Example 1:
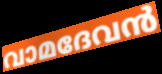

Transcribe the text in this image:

വാമദേവൻ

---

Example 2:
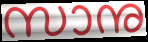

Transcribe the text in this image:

സാനു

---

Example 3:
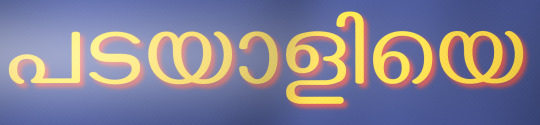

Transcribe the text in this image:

പടയാളിയെ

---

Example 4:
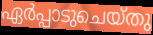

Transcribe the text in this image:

ഏർപ്പാടുചെയ്തു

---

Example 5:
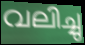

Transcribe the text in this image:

വലിച്ചു